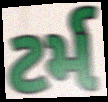
ટર્મ